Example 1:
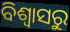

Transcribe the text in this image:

ବିଶ୍ବାସରୁ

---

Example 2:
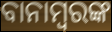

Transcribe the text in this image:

ବାନାମ୍ବରଙ୍କ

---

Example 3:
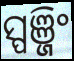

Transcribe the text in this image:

ସ୍ପଞ୍ଜିଂ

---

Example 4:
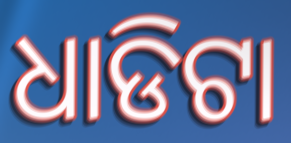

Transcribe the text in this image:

ଧାଡିଟା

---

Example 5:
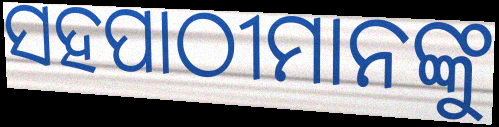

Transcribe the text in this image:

ସହପାଠୀମାନଙ୍କୁ